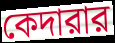
কেদারার